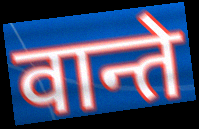
वान्ते